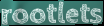
rootlets